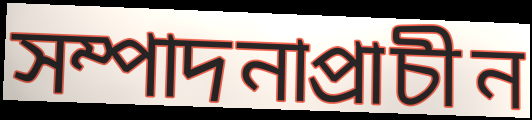
সম্পাদনাপ্রাচীন